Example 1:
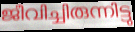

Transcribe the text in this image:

ജീവിച്ചിരുന്നിട്ടു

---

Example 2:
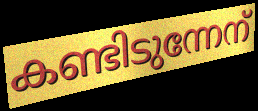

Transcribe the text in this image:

കണ്ടിടുന്നേന്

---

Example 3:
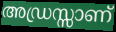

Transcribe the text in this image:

അഡ്രസ്സാണ്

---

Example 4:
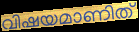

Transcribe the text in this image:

വിഷയമാണിത്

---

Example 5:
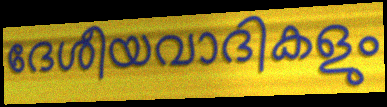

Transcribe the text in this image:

ദേശീയവാദികളും